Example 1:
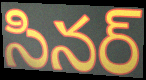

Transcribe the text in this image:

సినర్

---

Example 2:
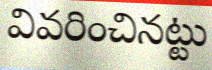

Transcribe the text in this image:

వివరించినట్టు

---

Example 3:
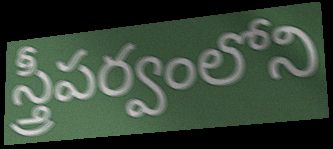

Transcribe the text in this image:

స్త్రీపర్వంలోని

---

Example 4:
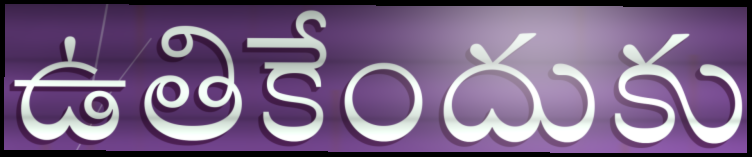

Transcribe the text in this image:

ఉతికేందుకు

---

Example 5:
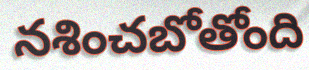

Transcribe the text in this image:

నశించబోతోంది